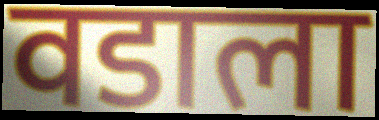
वडाला